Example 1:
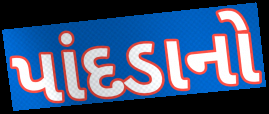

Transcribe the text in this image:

પાંદડાનો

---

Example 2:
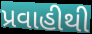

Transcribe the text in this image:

પ્રવાહીથી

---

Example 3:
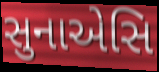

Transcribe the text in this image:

સુનાએસિ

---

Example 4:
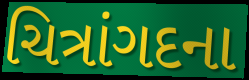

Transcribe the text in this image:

ચિત્રાંગદના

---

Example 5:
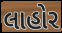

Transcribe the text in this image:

લાહોર